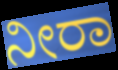
ನೀರಾ